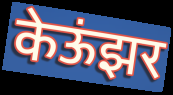
केऊंझर